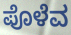
ಪೊಳೆವ